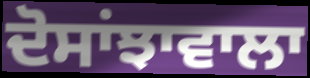
ਦੋਸਾਂਝਾਵਾਲਾ